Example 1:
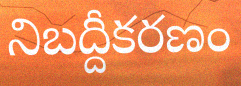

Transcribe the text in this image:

నిబద్దీకరణం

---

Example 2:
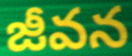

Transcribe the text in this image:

జీవన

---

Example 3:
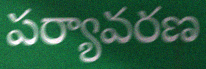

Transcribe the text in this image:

పర్యావరణ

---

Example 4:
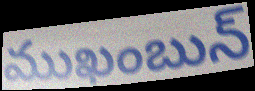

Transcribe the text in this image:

ముఖంబున్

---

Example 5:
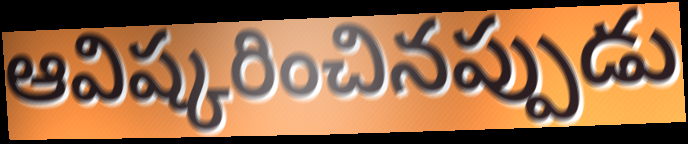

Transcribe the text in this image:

ఆవిష్కరించినప్పుడు